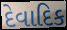
દેવાદિક